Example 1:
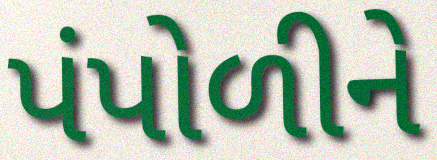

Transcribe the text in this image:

પંપોળીને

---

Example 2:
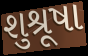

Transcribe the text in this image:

શુશ્રૂષા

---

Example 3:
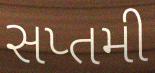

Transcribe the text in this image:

સપ્તમી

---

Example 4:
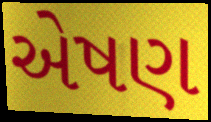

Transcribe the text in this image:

એષણ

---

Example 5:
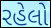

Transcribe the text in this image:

રહેલો